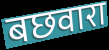
बछवारा